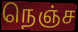
நெஞ்ச